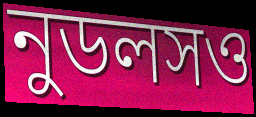
নুডলসও